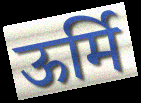
ऊर्मि